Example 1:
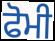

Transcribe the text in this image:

ਫੋਮੀ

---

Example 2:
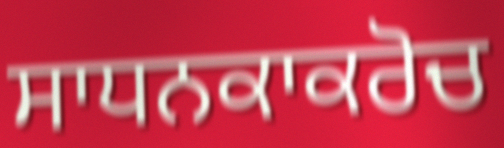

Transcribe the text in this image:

ਸਾਧਨਕਾਕਰੋਚ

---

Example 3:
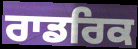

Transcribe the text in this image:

ਰਾਡਰਿਕ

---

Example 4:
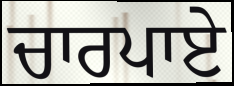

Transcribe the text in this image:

ਚਾਰਪਾਏ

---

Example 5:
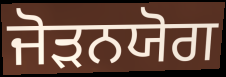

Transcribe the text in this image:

ਜੋੜਨਯੋਗ